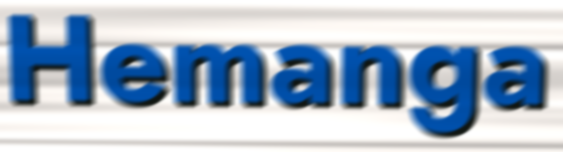
Hemanga